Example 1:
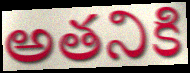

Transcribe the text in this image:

అతనికి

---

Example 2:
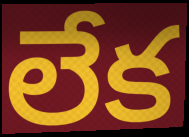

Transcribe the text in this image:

లేక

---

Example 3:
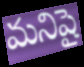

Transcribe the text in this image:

మనిషై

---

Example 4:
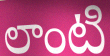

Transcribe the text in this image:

లాంటి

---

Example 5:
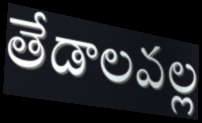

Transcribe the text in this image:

తేడాలవల్ల